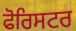
ਫੋਰਿਸਟਰ